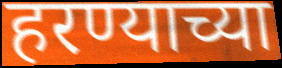
हरण्याच्या